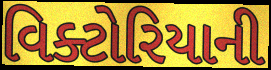
વિક્ટોરિયાની